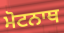
ਮੋਟਨਾਥ